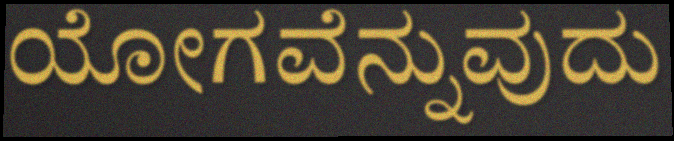
ಯೋಗವೆನ್ನುವುದು